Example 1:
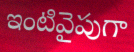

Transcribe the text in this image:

ఇంటివైపుగా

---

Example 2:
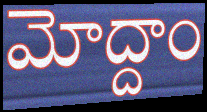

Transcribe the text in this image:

మోద్దాం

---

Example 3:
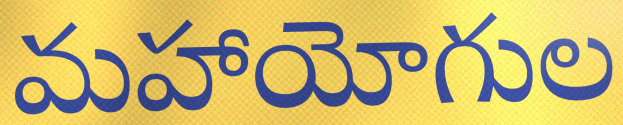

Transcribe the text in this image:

మహాయోగుల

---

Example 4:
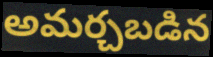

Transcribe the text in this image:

అమర్చబడిన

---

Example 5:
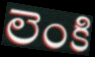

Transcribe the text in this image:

లెంకి